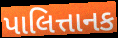
પાલિત્તાનક